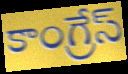
కాంగ్రేస్